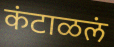
कंटाळलं